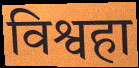
विश्वहा